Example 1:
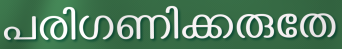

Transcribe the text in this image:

പരിഗണിക്കരുതേ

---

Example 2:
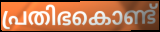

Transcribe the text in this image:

പ്രതിഭകൊണ്ട്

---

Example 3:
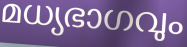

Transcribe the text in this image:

മധ്യഭാഗവും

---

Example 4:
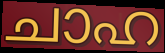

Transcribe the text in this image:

ചാഹ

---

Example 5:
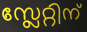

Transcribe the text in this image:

സ്ലേറ്റിന്